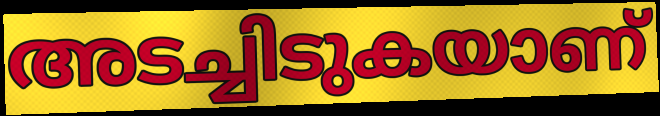
അടച്ചിടുകയാണ്